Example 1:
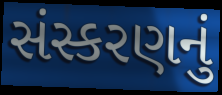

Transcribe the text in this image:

સંસ્કરણનું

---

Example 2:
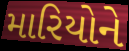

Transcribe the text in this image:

મારિયોને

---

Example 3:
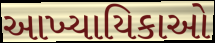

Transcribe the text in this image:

આખ્યાયિકાઓ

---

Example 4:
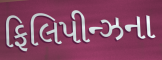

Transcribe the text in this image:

ફિલિપીન્ઝના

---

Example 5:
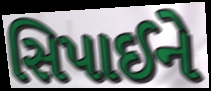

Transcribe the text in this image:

સિપાઈને